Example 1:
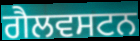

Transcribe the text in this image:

ਗੈਲਵਸਟਨ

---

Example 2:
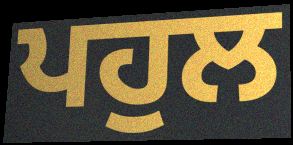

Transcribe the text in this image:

ਪਹੁਲ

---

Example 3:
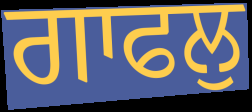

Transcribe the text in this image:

ਗਾਫਲੁ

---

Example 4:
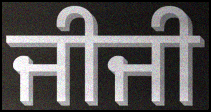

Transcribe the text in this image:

ਜੀਜੀ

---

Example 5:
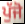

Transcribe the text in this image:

ਪੁੱਜੋ